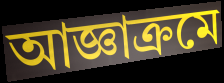
আজ্ঞাক্রমে